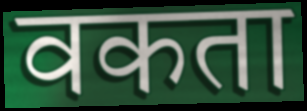
वकता